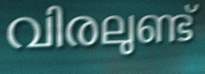
വിരലുണ്ട്